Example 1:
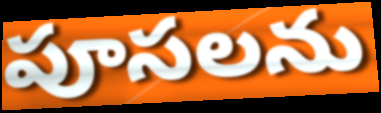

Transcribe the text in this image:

పూసలను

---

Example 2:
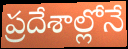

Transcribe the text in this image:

ప్రదేశాల్లోనే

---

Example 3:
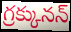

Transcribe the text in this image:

గ్రక్కునన్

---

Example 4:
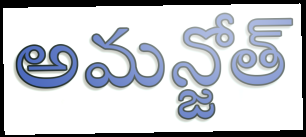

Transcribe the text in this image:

అమన్జోత్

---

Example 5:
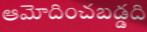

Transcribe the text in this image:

ఆమోదించబడ్డది